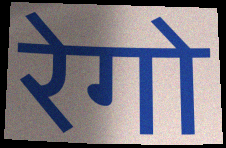
रेगो